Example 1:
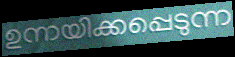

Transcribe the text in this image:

ഉന്നയിക്കപ്പെടുന്ന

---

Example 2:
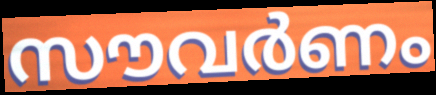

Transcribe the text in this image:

സൗവർണം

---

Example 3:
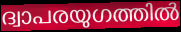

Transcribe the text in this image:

ദ്വാപരയുഗത്തിൽ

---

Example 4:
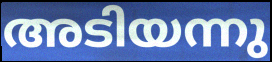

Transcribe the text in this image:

അടിയന്നു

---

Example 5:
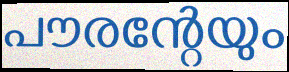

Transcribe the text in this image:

പൗരന്റേയും